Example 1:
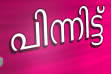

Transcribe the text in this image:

പിന്നിട്ട്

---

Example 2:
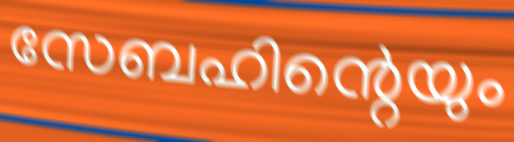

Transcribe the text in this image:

സേബഹിന്റെയും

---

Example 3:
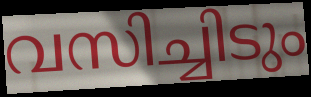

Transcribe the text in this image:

വസിച്ചിടും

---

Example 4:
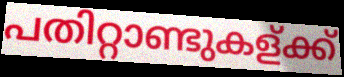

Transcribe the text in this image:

പതിറ്റാണ്ടുകള്ക്ക്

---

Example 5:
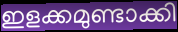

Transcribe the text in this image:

ഇളക്കമുണ്ടാക്കി